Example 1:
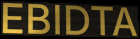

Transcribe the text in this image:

EBIDTA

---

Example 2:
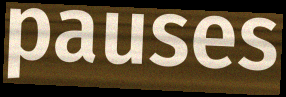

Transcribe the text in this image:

pauses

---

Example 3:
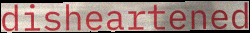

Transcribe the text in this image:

disheartened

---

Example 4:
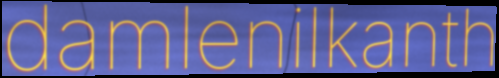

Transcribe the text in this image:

damlenilkanth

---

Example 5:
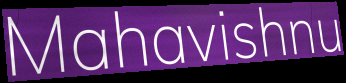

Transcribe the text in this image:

Mahavishnu